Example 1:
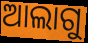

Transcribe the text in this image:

ଆଲାଗୁ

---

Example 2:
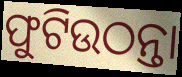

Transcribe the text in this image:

ଫୁଟିଉଠନ୍ତା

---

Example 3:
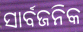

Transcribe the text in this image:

ସାର୍ବଜନିକ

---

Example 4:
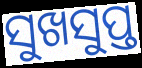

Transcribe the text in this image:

ସୁଖସୁପ୍ତ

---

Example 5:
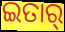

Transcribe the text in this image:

ଇତାର୍